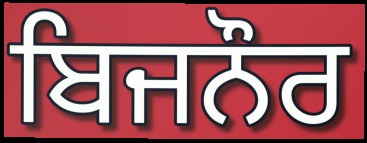
ਬਿਜਨੌਰ